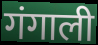
गंगाली